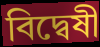
বিদ্বেষী